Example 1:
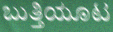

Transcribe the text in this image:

ಬುತ್ತಿಯೂಟ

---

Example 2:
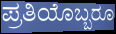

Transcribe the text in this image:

ಪ್ರತಿಯೊಬ್ಬರೂ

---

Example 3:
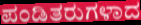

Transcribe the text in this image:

ಪಂಡಿತರುಗಳಾದ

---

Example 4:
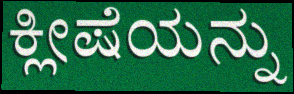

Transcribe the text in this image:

ಕ್ಲೀಷೆಯನ್ನು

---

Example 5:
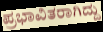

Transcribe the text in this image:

ಪ್ರಭಾವಿತರಾಗಿದ್ದು